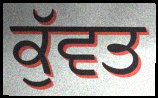
ਕੁੱਵਤ